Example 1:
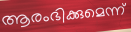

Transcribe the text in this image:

ആരംഭിക്കുമെന്ന്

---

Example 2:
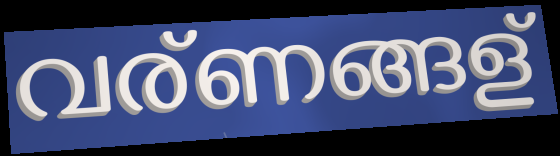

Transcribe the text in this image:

വര്ണങ്ങള്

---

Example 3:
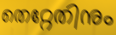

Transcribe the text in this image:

തെറ്റേതിനും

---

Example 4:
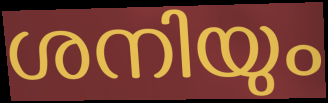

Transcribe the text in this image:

ശനിയും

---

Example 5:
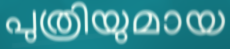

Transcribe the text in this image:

പുത്രിയുമായ